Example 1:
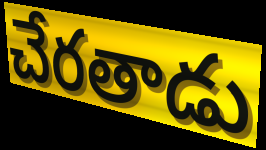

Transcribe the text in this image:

చేరతాడు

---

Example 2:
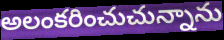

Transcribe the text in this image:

అలంకరించుచున్నాను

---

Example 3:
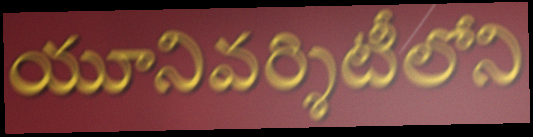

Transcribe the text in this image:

యూనివర్శిటీలోని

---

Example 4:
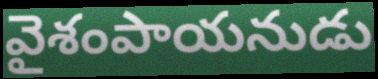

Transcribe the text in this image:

వైశంపాయనుడు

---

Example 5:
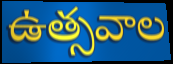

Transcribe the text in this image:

ఉత్సవాల